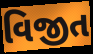
વિજીત